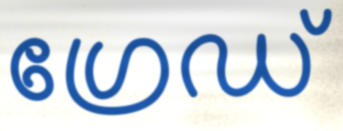
ഗ്രേഡ്